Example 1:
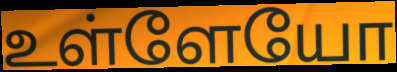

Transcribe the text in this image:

உள்ளேயோ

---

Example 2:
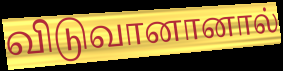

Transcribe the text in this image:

விடுவானானால்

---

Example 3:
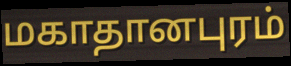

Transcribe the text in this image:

மகாதானபுரம்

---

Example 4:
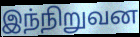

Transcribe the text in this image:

இந்நிறுவன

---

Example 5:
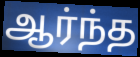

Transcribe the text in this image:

ஆர்ந்த